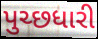
પુચ્છધારી